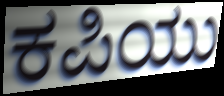
ಕಪಿಯು